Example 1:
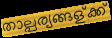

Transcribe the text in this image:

താല്പര്യങ്ങള്ക്ക്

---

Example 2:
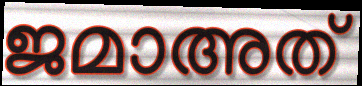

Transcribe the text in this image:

ജമാഅത്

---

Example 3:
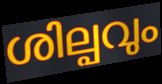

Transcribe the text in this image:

ശില്പവും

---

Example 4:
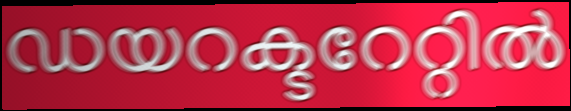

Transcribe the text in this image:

ഡയറക്ടറേറ്റിൽ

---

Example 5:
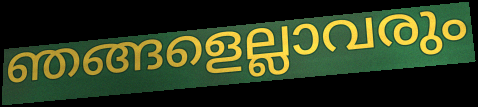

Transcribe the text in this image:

ഞങ്ങളെല്ലാവരും